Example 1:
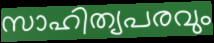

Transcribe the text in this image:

സാഹിത്യപരവും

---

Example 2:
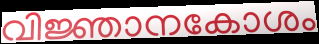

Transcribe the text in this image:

വിജ്ഞാനകോശം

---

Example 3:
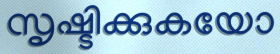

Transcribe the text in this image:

സൃഷ്ടിക്കുകയോ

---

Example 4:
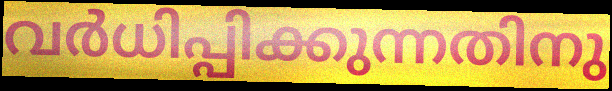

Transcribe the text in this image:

വർധിപ്പിക്കുന്നതിനു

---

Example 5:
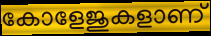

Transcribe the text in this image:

കോളേജുകളാണ്